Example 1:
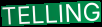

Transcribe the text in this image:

TELLING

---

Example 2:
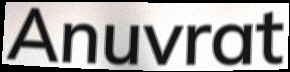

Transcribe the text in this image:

Anuvrat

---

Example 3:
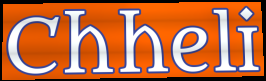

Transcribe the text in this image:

Chheli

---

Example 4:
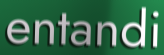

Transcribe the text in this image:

entandi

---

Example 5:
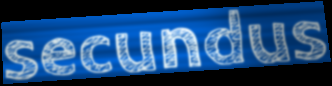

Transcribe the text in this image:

secundus